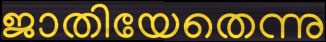
ജാതിയേതെന്നു